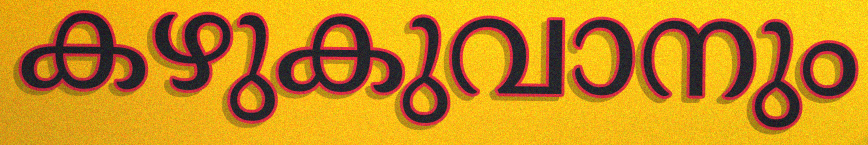
കഴുകുവാനും